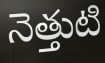
నెత్తుటి